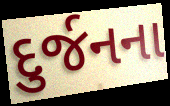
દુર્જનના